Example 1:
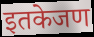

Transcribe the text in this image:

इतकेजण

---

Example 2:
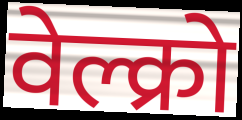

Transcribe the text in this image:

वेल्क्रो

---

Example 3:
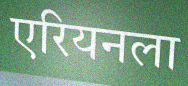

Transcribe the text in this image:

एरियनला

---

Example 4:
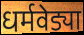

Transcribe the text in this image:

धर्मवेड्या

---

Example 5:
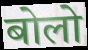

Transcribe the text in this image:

बोलो